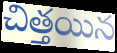
చిత్తయిన